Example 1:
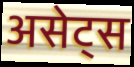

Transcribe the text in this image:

असेट्स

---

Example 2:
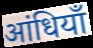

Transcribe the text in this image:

आंधियाँ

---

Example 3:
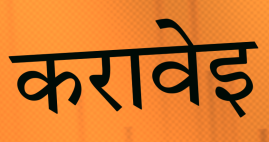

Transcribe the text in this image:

करावेइ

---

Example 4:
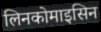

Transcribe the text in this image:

लिनकोमाइसिन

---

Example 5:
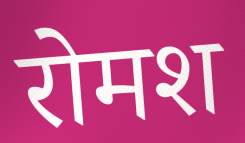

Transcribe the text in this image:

रोमश